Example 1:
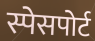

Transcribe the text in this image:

स्पेसपोर्ट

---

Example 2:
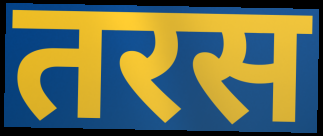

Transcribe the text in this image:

तरस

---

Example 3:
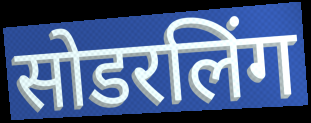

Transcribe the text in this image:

सोडरलिंग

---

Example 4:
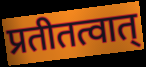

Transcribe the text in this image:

प्रतीतत्वात्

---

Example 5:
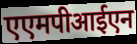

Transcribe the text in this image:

एएमपीआईएन